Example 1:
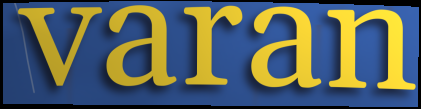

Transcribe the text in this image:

varan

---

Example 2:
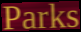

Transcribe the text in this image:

Parks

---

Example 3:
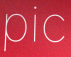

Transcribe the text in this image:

pic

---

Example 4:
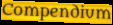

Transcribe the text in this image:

Compendium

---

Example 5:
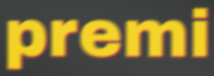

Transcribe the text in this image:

premi